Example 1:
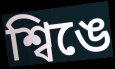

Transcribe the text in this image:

শ্বিঙে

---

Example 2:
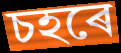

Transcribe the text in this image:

চহৰে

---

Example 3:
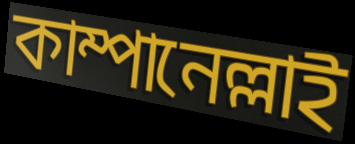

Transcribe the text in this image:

কাম্পানেল্লাই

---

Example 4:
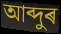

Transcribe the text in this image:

আব্দুৰ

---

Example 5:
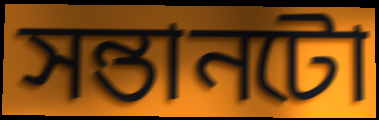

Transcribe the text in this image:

সন্তানটো